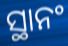
ସ୍ଥାନଂ